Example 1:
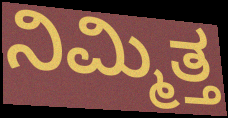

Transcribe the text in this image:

ನಿಮ್ಮಿತ್ತ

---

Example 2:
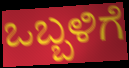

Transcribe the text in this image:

ಒಬ್ಬಳಿಗೆ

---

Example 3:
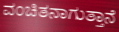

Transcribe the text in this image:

ವಂಚಿತನಾಗುತ್ತಾನೆ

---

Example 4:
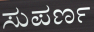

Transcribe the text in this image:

ಸುಪರ್ಣ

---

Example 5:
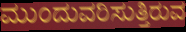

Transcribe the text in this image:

ಮುಂದುವರಿಸುತ್ತಿರುವ